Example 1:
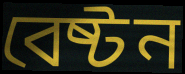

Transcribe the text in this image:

বেষ্টন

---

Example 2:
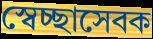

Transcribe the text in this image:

স্বেচ্ছাসেবক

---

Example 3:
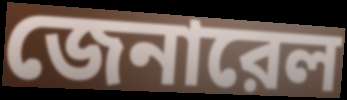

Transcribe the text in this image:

জেনারেল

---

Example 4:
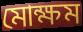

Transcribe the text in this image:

মোক্ষম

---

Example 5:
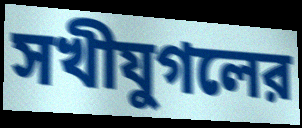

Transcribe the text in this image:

সখীযুগলের